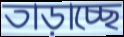
তাড়াচ্ছে